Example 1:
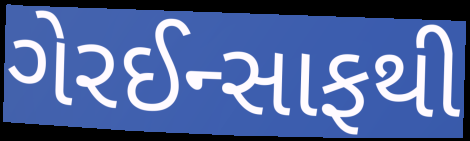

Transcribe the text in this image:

ગેરઈન્સાફથી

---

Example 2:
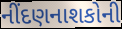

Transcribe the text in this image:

નીંદણનાશકોની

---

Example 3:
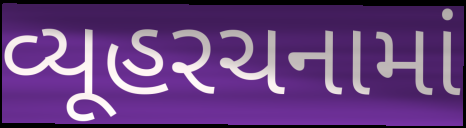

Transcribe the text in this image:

વ્યૂહરચનામાં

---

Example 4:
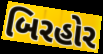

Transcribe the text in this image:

બિરહોર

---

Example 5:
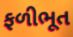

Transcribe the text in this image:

ફળીભૂત